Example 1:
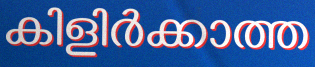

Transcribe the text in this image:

കിളിർക്കാത്ത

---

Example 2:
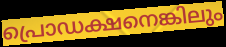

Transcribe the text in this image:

പ്രൊഡക്ഷനെങ്കിലും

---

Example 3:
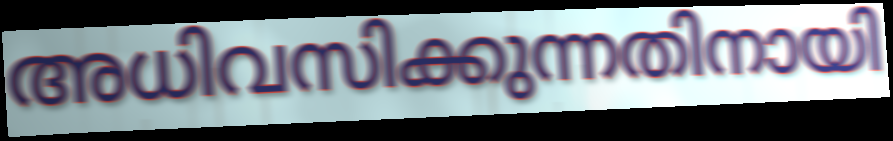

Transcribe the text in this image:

അധിവസിക്കുന്നതിനായി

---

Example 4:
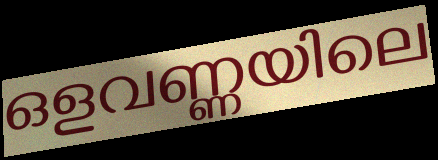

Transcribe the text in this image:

ഒളവണ്ണയിലെ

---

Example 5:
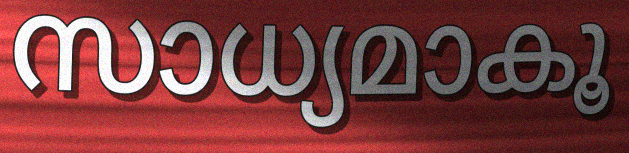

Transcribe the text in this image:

സാധ്യമാകൂ